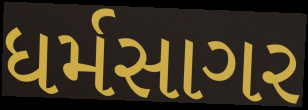
ધર્મસાગર